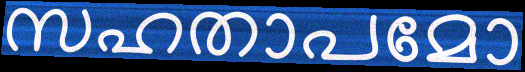
സഹതാപമോ